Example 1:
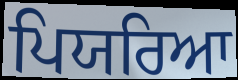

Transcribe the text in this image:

ਪਿਯਰਿਆ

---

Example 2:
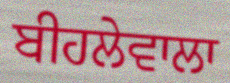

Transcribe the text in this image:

ਬੀਹਲੇਵਾਲਾ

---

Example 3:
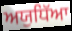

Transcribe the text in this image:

ਅਯੁਧਿੱਆ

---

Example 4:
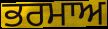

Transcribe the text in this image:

ਭਰਮਾਅ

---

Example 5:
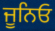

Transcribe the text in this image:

ਜੂਨਿਓ